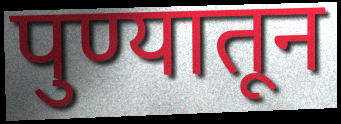
पुण्यातून